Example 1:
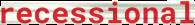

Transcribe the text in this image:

recessional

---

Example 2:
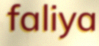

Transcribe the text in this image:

faliya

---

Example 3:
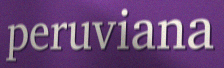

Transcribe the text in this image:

peruviana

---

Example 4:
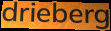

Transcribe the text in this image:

drieberg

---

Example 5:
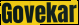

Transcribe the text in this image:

Govekar